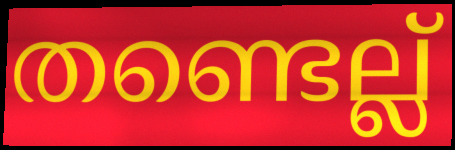
തണ്ടെല്ല്